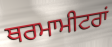
ਥਰਮਾਮੀਟਰਾਂ